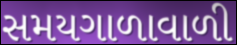
સમયગાળાવાળી